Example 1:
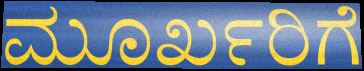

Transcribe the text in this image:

ಮೂರ್ಖರಿಗೆ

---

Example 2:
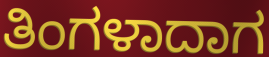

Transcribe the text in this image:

ತಿಂಗಳಾದಾಗ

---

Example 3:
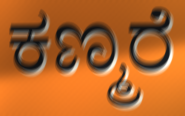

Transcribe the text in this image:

ಕಣ್ಮರೆ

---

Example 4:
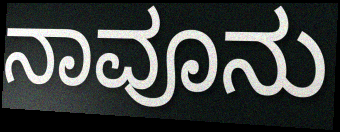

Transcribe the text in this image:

ನಾವೂನು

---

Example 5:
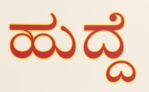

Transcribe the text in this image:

ಹುದ್ದೆ